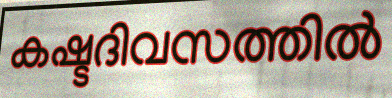
കഷ്ടദിവസത്തിൽ